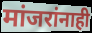
मांजरांनाही